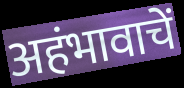
अहंभावाचें